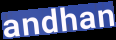
andhan